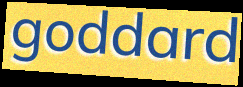
goddard